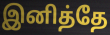
இனித்தே